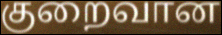
குறைவான